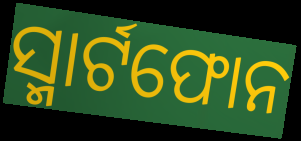
ସ୍ମାର୍ଟଫୋନ